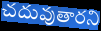
చదువుతారని